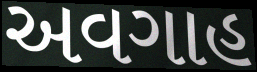
અવગાહ